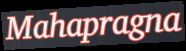
Mahapragna